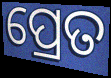
ପ୍ରେତ